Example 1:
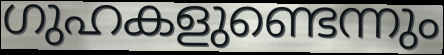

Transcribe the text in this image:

ഗുഹകളുണ്ടെന്നും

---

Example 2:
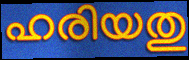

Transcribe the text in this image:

ഹരിയതു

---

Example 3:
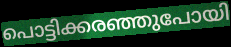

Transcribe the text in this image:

പൊട്ടിക്കരഞ്ഞുപോയി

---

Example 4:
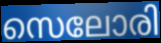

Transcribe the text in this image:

സെലോരി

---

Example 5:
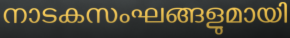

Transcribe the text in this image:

നാടകസംഘങ്ങളുമായി